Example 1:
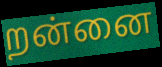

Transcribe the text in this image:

றன்னை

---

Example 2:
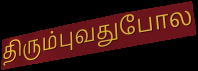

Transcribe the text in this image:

திரும்புவதுபோல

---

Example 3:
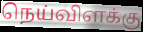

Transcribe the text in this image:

நெய்விளக்கு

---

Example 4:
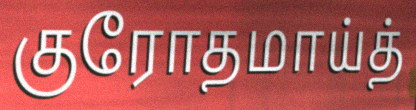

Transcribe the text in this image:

குரோதமாய்த்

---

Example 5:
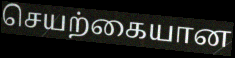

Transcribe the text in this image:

செயற்கையான